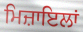
ਮਿਜ਼ਾਇਲਾਂ